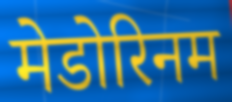
मेडोरिनम